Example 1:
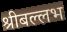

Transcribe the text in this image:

श्रीबल्लभ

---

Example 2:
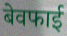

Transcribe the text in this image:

बेवफाई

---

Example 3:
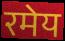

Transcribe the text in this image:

रमेय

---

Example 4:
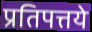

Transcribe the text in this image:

प्रतिपत्तये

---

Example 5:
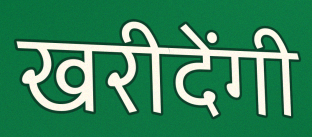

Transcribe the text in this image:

खरीदेंगी